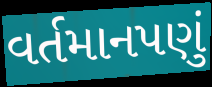
વર્તમાનપણું